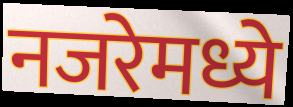
नजरेमध्ये